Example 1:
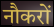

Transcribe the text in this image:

नौकरों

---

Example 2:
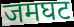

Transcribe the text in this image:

जमघट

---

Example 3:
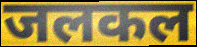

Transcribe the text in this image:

जलकल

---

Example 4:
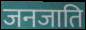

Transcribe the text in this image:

जनजाति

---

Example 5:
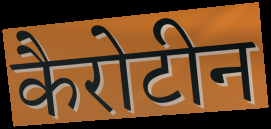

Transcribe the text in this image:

कैरोटीन